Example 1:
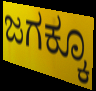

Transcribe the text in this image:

ಜಗಕ್ಕೂ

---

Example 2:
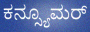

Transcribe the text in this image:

ಕನ್ಸ್ಯೂಮರ್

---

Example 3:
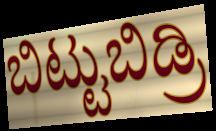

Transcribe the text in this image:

ಬಿಟ್ಟುಬಿಡ್ರಿ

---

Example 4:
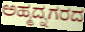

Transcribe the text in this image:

ಅಹ್ಮದ್ನಗರದ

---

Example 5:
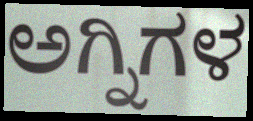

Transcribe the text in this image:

ಅಗ್ನಿಗಳ